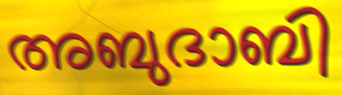
അബുദാബി